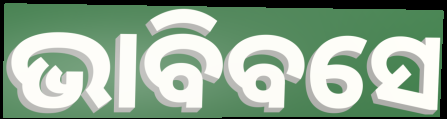
ଭାବିବସେ